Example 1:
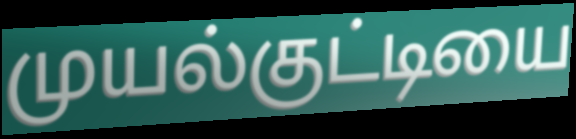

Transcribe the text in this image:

முயல்குட்டியை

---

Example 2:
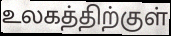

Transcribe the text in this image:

உலகத்திற்குள்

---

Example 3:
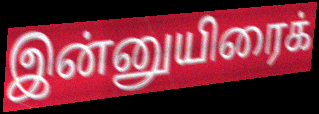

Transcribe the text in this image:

இன்னுயிரைக்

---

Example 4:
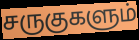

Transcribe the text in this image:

சருகுகளும்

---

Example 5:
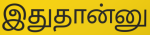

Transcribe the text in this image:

இதுதான்னு